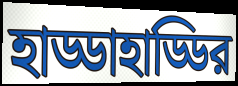
হাড্ডাহাড্ডির